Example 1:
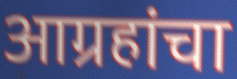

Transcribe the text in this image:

आग्रहांचा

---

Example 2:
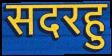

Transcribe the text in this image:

सदरहु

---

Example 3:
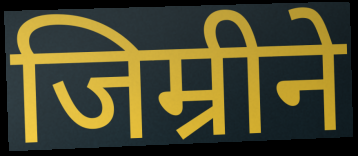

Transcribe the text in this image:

जिम्रीने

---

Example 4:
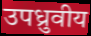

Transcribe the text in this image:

उपध्रुवीय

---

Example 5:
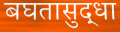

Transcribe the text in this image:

बघतासुद्धा